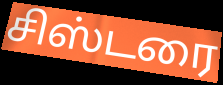
சிஸ்டரை